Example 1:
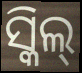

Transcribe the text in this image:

ସ୍କିଲ୍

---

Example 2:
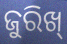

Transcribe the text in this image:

ଜୁରିଖ୍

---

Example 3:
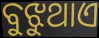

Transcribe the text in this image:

ବୁଝୁଥାଏ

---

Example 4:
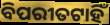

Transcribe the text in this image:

ବିପରୀତଟାହିଁ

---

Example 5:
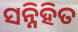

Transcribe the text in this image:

ସନ୍ନିହିତ